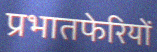
प्रभातफेरियों